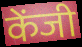
केंजी